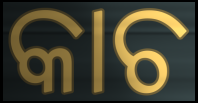
କାଚ